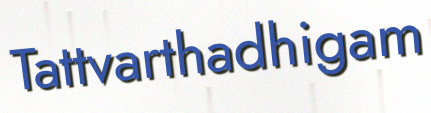
Tattvarthadhigam